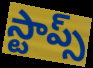
స్టాప్స్